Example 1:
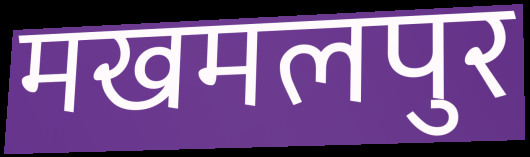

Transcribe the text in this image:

मखमलपुर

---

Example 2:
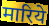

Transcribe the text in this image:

मारिये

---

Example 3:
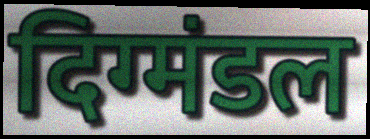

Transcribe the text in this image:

दिग्मंडल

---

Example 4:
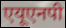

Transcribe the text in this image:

एयूएनपी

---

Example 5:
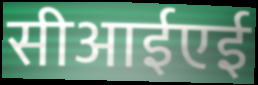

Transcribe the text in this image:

सीआईएई